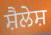
ਸ਼ੈਲੇਸ਼